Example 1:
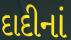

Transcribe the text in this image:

દાદીનાં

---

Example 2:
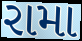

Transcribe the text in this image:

રામા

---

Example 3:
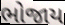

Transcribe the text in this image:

ભોજાય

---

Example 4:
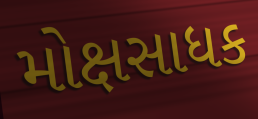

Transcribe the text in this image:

મોક્ષસાધક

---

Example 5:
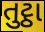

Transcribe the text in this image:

તુટ્ઠા